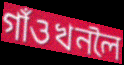
গাঁওখনলৈ